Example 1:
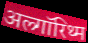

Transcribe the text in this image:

अल्गॉरिथ्म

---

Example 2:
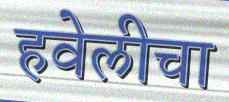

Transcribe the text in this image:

हवेलीचा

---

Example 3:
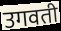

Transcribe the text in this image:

उगवती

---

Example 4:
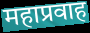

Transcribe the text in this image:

महाप्रवाह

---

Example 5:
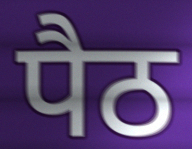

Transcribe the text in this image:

पैठ